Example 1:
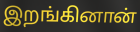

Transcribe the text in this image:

இறங்கினான்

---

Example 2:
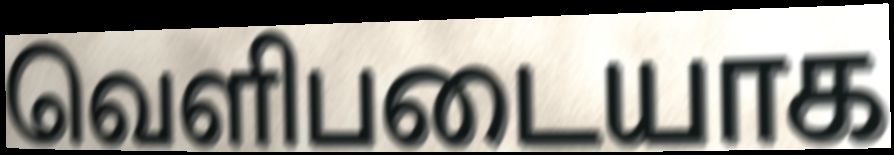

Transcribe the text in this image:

வெளிபடையாக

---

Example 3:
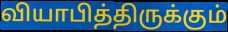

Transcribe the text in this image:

வியாபித்திருக்கும்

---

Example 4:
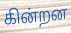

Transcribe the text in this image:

கின்றன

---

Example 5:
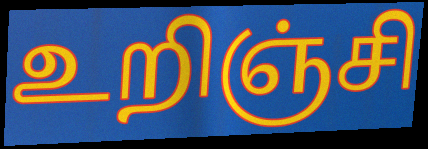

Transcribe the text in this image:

உறிஞ்சி